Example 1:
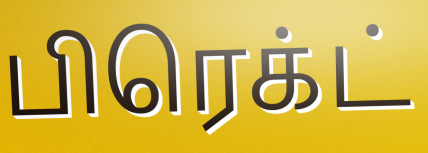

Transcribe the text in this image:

பிரெக்ட்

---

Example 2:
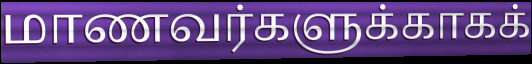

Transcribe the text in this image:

மாணவர்களுக்காகக்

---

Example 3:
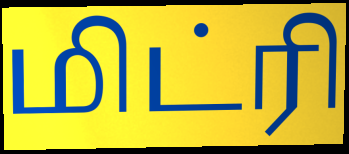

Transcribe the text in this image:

மிட்ரி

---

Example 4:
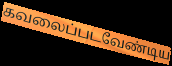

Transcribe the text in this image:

கவலைப்படவேண்டிய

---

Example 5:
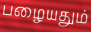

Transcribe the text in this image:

பழையதும்